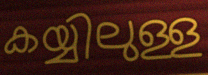
കയ്യിലുള്ള